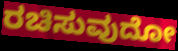
ರಚಿಸುವುದೋ